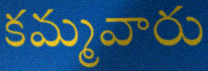
కమ్మవారు